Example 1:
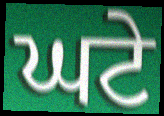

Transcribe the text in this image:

ਘਟੇ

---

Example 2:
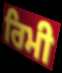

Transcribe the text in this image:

ਰਿਮੀ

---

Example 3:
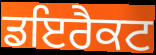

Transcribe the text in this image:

ਡਇਰੈਕਟ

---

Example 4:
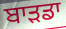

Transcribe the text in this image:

ਬਾੜਡਾ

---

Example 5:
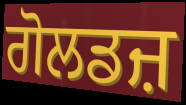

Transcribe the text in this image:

ਗੋਲਡਜ਼